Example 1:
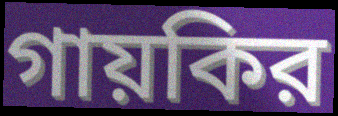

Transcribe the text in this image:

গায়কির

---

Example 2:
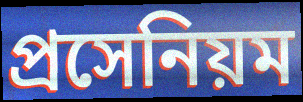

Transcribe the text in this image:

প্রসেনিয়ম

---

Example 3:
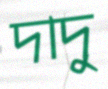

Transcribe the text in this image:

দাদু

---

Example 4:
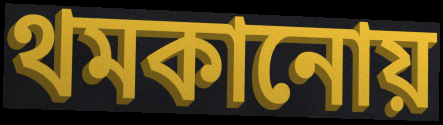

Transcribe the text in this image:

থমকানোয়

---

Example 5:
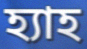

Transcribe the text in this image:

হ্যাহ